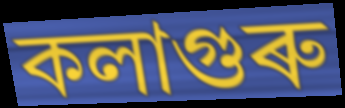
কলাগুৰু